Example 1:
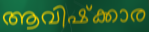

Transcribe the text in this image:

ആവിഷ്‌ക്കാര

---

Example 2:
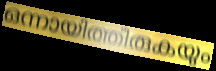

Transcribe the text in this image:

ഒന്നായിത്തീരുകയും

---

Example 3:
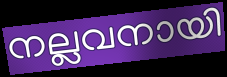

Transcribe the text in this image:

നല്ലവനായി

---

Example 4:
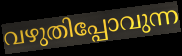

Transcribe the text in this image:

വഴുതിപ്പോവുന്ന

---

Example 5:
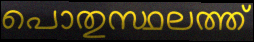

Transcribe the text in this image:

പൊതുസ്ഥലത്ത്